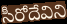
సీరోదేవిని